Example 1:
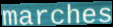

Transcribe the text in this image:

marches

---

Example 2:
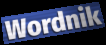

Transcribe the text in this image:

Wordnik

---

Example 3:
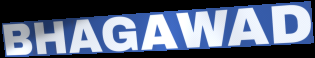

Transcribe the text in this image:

BHAGAWAD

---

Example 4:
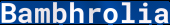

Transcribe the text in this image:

Bambhrolia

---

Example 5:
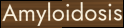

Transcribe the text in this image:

Amyloidosis